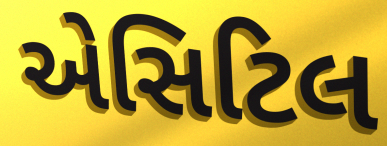
એસિટિલ